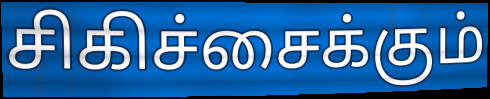
சிகிச்சைக்கும்